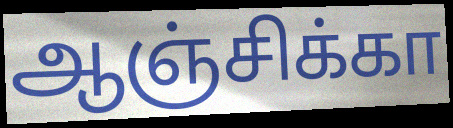
ஆஞ்சிக்கா